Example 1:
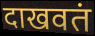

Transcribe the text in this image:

दाखवतं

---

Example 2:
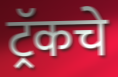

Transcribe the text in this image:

ट्रॅकचे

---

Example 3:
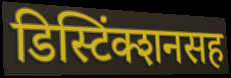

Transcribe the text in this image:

डिस्टिंक्शनसह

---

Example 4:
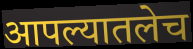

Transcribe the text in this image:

आपल्यातलेच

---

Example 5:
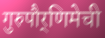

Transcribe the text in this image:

गुरुपौर्णिमेची